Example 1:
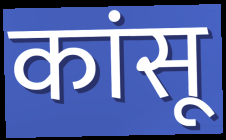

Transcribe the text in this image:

कांसू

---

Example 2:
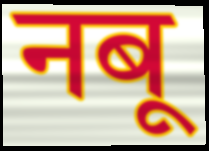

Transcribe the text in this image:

नबू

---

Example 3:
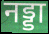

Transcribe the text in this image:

नड्डा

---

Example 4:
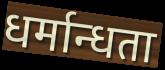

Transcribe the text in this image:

धर्मान्धता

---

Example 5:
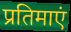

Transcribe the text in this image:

प्रतिमाएं